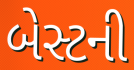
બેસ્ટની